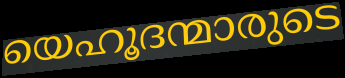
യെഹൂദന്മാരുടെ